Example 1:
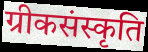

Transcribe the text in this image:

ग्रीकसंस्कृति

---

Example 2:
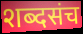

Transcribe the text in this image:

शब्दसंच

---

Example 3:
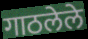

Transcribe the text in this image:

गाठलेले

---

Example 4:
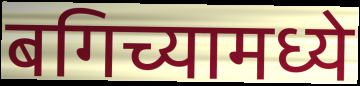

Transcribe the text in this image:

बगिच्यामध्ये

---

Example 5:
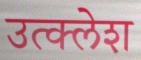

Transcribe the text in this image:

उत्क्लेश